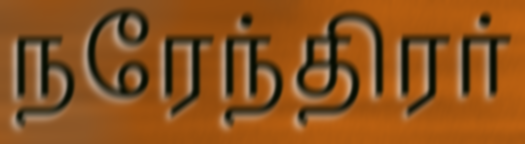
நரேந்திரர்